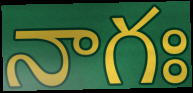
నాగః